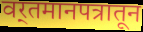
वर्तमानपत्रातून